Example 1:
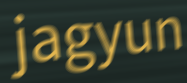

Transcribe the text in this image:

jagyun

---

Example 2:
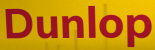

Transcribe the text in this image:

Dunlop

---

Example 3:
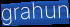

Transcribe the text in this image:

grahun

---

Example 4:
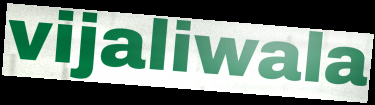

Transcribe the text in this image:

vijaliwala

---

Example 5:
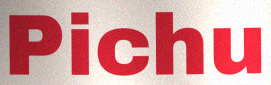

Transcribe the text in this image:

Pichu